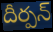
దీర్పన్